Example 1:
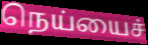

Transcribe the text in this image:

நெய்யைச்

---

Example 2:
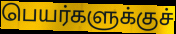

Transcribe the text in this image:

பெயர்களுக்குச்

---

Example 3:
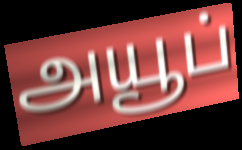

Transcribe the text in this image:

அயூப்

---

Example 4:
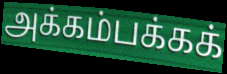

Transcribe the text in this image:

அக்கம்பக்கக்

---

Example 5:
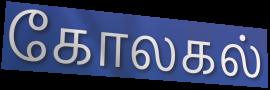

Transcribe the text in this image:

கோலகல்